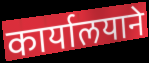
कार्यालयाने